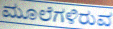
ಮೂಲೆಗಳಿರುವ